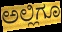
ಅಲ್ಲಿಗೂ